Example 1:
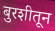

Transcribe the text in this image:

बुरशीतून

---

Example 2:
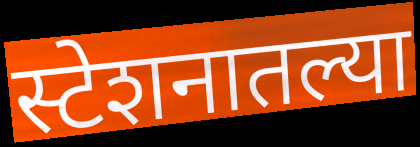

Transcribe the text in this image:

स्टेशनातल्या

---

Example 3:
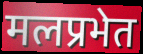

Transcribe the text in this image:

मलप्रभेत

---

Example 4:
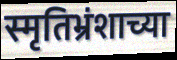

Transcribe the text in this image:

स्मृतिभ्रंशाच्या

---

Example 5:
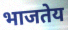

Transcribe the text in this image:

भाजतेय